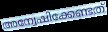
അന്വേഷിക്കേണ്ടത്